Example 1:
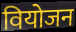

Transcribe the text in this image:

वियोजन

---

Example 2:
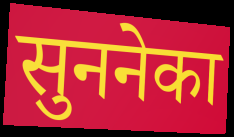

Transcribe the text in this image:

सुननेका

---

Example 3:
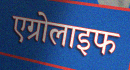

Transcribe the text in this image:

एग्रोलाइफ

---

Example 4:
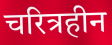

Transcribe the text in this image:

चरित्रहीन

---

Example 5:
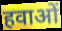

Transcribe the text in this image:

हवाओं